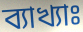
ব্যাখ্যাঃ